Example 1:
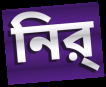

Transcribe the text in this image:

নির্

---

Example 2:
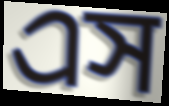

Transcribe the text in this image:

এস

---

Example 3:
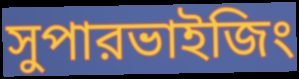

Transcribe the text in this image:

সুপারভাইজিং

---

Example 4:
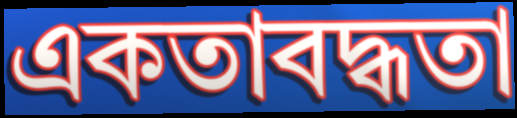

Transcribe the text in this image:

একতাবদ্ধতা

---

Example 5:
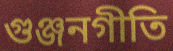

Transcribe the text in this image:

গুঞ্জনগীতি